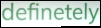
definetely